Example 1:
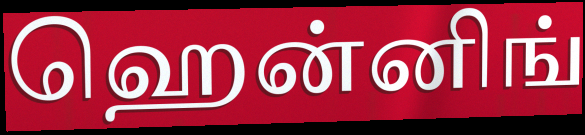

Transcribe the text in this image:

ஹென்னிங்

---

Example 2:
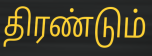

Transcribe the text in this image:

திரண்டும்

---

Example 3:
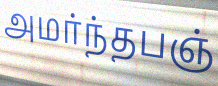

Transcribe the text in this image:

அமர்ந்தபஞ்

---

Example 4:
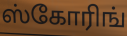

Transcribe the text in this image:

ஸ்கோரிங்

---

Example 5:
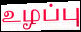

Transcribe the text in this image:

உழப்பு